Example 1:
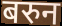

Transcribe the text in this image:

बरुन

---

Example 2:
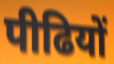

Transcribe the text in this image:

पीढियों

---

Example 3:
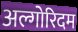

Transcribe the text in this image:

अल्गोरिदम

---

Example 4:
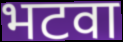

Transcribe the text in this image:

भटवा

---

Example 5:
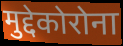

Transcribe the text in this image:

मुद्देकोरोना